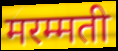
मरम्मती